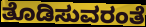
ತೊಡಿಸುವರಂತೆ